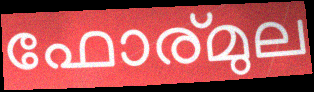
ഫോര്മുല